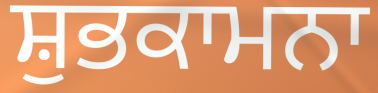
ਸ਼ੁਭਕਾਮਨਾ